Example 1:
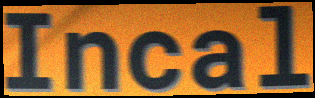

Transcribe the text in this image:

Incal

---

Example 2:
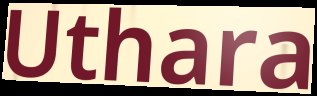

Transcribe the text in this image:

Uthara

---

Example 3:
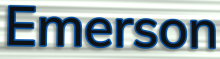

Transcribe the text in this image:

Emerson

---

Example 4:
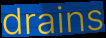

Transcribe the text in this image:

drains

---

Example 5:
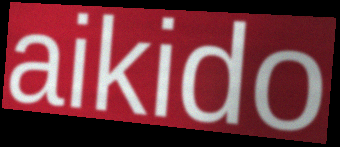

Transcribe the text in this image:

aikido